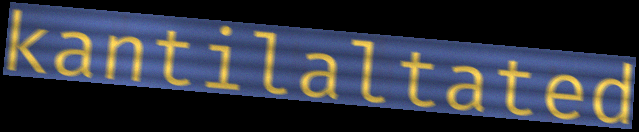
kantilaltated